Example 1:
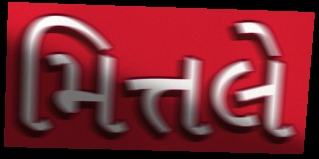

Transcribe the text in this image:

મિત્તલે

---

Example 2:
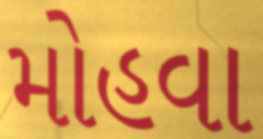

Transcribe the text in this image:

મોહવા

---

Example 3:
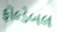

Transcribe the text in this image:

ફૉલ્ડેબલ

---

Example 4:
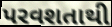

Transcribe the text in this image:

પરવશતાથી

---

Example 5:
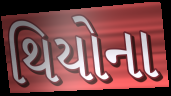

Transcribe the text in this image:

થિયોના